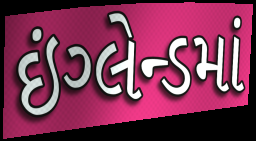
ઇંગ્લેન્ડમાં